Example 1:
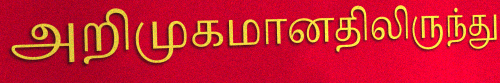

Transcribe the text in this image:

அறிமுகமானதிலிருந்து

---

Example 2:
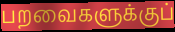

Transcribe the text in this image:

பறவைகளுக்குப்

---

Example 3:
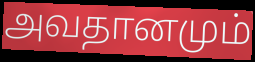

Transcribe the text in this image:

அவதானமும்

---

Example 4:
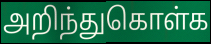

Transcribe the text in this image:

அறிந்துகொள்க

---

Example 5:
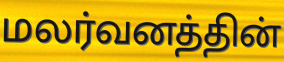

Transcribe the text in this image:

மலர்வனத்தின்